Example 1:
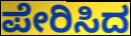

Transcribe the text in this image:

ಪೇರಿಸಿದ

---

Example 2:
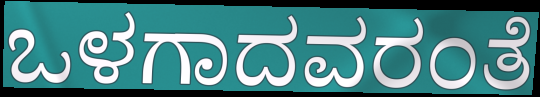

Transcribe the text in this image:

ಒಳಗಾದವರಂತೆ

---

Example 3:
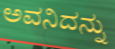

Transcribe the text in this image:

ಅವನಿದನ್ನು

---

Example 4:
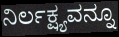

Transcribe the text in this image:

ನಿರ್ಲಕ್ಷ್ಯವನ್ನೂ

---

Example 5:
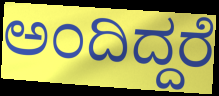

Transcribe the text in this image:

ಅಂದಿದ್ದರೆ